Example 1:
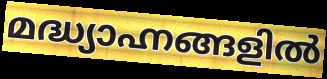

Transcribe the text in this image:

മദ്ധ്യാഹ്നങ്ങളിൽ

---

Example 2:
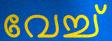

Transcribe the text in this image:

വേച്ച്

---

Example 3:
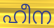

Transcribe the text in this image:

ഹീന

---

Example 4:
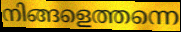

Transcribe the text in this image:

നിങ്ങളെത്തന്നെ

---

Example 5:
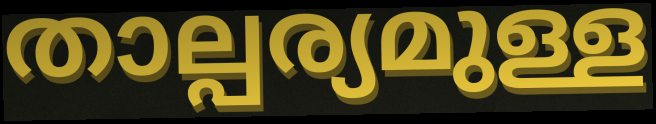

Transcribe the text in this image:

താല്പര്യമുള്ള